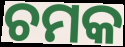
ଚମକ